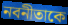
নবনীতাকে